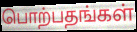
பொற்பதங்கள்